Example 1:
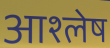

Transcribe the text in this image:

आश्लेष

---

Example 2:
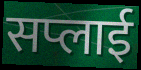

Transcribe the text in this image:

सप्‍लाई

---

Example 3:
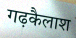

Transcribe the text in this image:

गढ़कैलाश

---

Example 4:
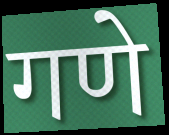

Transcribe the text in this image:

गणे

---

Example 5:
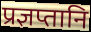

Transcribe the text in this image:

प्रज्ञप्तानि